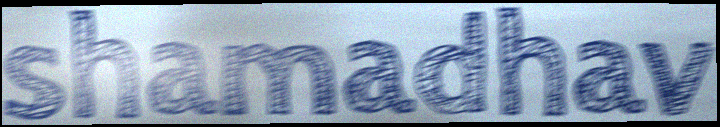
shamadhav